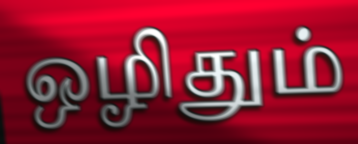
ஒழிதும்